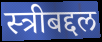
स्त्रीबद्दल